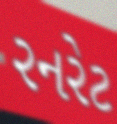
રનરેટ